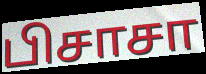
பிசாசா